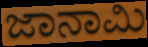
ಜಾನಾಮಿ